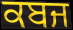
ਕਬਜ